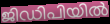
ജിഡിപിയിൽ